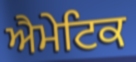
ਐਮੇਟਿਕ